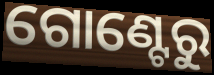
ଗୋଣ୍ଟେରୁ